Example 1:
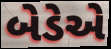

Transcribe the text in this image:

બેડેએ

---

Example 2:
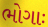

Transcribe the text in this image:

ભોગાઃ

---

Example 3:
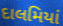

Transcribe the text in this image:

દાલમિયાં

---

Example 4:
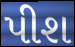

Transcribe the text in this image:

પીશ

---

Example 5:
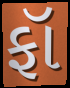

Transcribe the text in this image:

ફૉ